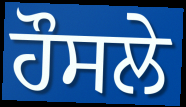
ਹੌਸਲੇ